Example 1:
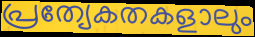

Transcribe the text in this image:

പ്രത്യേകതകളാലും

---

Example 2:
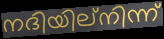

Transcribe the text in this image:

നദിയില്നിന്ന്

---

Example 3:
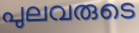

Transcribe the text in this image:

പുലവരുടെ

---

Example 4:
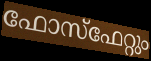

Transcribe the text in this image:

ഫോസ്ഫേറ്റും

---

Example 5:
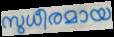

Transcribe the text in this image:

സുധീരമായ